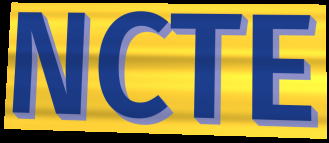
NCTE